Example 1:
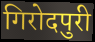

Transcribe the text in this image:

गिरोदपुरी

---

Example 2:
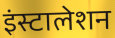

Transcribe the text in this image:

इंस्टालेशन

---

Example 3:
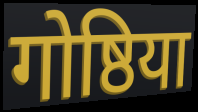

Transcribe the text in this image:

गोष्ठिया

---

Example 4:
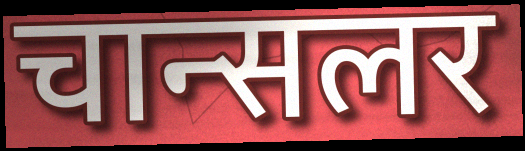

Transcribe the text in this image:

चान्सलर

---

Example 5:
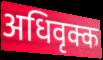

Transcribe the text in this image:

अधिवृक्क